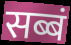
सब्बं